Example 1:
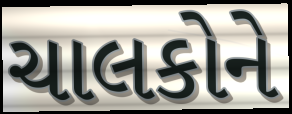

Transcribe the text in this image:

ચાલકોને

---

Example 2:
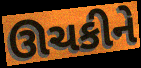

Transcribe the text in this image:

ઊચકીને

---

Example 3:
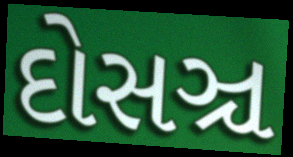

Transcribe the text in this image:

દોસઞ્ચ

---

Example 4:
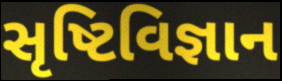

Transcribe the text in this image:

સૃષ્ટિવિજ્ઞાન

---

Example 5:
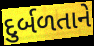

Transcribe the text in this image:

દુર્બળતાને